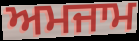
ਅਮਜਾਮ